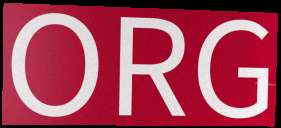
ORG